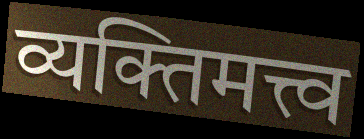
व्यक्तिमत्त्व